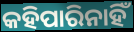
କହିପାରିନାହିଁ